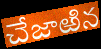
చేజాఱిన